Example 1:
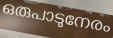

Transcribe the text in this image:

ഒരുപാടുനേരം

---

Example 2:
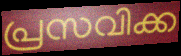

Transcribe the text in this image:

പ്രസവിക്ക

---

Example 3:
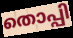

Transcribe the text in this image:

തൊപ്പി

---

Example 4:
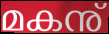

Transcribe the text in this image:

മകനു്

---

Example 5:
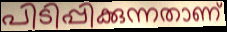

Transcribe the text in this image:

പിടിപ്പിക്കുന്നതാണ്